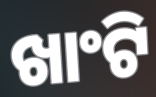
ଖାଂଟି